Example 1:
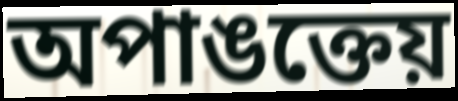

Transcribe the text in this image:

অপাঙক্তেয়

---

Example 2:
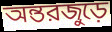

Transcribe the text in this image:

অন্তরজুড়ে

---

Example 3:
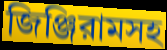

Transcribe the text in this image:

জিঞ্জিরামসহ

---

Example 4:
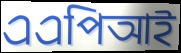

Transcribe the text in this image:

এএপিআই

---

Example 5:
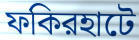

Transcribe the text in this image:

ফকিরহাটে